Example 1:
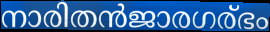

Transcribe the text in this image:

നാരിതൻജാരഗര്ഭം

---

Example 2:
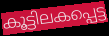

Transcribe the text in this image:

കൂട്ടിലകപ്പെട്ട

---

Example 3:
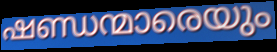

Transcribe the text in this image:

ഷണ്ഡന്മാരെയും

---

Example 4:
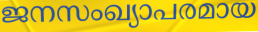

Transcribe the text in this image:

ജനസംഖ്യാപരമായ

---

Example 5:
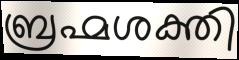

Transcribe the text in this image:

ബ്രഹ്മശക്തി